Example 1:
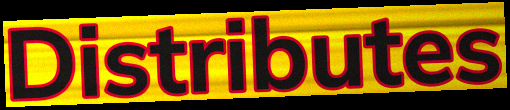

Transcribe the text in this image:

Distributes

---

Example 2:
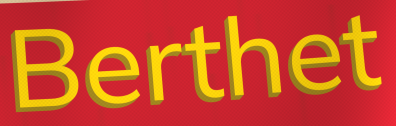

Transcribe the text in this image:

Berthet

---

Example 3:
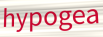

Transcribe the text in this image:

hypogea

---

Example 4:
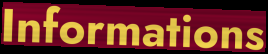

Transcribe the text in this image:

Informations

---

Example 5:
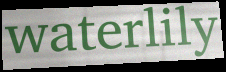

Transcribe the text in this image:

waterlily